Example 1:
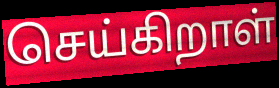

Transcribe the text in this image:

செய்கிறாள்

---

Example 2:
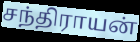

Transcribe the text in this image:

சந்திராயன்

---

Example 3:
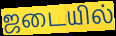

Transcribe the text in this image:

ஜடையில்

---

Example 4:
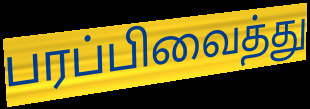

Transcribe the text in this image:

பரப்பிவைத்து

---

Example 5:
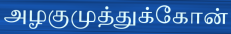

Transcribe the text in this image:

அழகுமுத்துக்கோன்